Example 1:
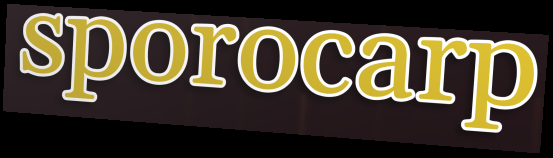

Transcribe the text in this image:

sporocarp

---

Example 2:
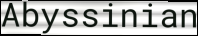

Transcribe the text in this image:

Abyssinian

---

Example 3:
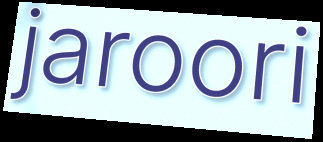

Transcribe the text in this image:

jaroori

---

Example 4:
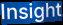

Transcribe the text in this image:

Insight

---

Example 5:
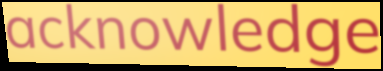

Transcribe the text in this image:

acknowledge